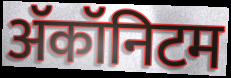
ॲकॉनिटम